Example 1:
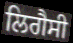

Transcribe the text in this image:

ਲਿਗੈਸੀ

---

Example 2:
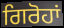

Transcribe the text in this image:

ਗਿਰੋਹਾਂ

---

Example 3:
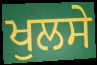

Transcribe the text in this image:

ਖੁਲਸੇ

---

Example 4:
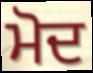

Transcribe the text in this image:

ਮੋਦ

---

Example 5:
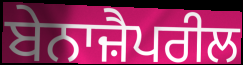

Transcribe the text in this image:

ਬੇਨਾਜ਼ੈਪਰੀਲ